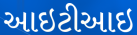
આઇટીઆઇ